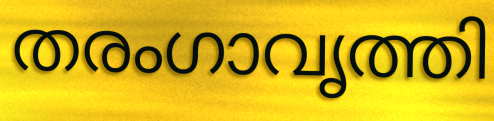
തരംഗാവൃത്തി